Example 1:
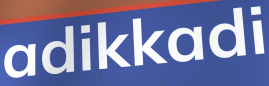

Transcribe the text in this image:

adikkadi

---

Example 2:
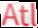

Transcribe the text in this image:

Atl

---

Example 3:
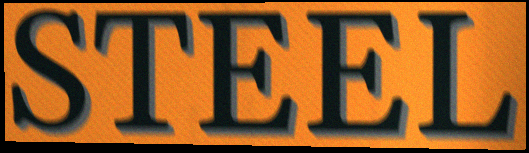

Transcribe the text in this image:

STEEL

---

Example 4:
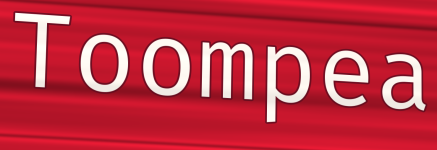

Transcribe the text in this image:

Toompea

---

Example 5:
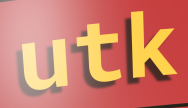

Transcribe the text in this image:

utk